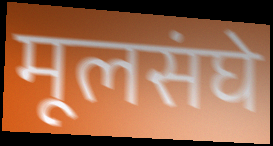
मूलसंघे